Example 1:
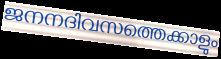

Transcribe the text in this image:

ജനനദിവസത്തെക്കാളും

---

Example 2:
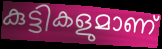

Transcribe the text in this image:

കുട്ടികളുമാണ്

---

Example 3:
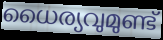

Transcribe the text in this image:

ധൈര്യവുമുണ്ട്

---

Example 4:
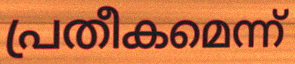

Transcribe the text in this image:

പ്രതീകമെന്ന്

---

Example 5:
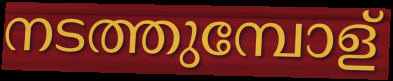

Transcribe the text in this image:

നടത്തുമ്പോള്